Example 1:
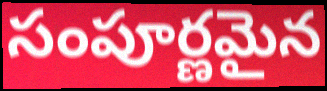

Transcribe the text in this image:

సంపూర్ణమైన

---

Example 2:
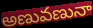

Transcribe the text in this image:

అణువణునా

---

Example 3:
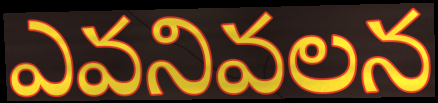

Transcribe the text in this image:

ఎవనివలన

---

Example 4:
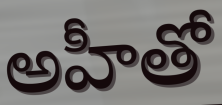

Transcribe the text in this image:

అహీతో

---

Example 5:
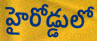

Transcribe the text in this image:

హైరోడ్డులో